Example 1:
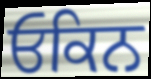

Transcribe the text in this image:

ਓਕਿਨ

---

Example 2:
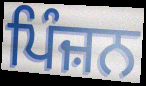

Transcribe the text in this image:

ਪਿੰਜ਼ਨ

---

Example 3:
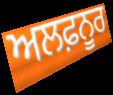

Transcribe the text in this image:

ਅਲਫ਼ਨੂਰ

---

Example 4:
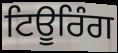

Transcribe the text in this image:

ਟਿਊਰਿੰਗ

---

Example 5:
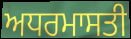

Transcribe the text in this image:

ਅਧਰਮਾਸਤੀ